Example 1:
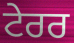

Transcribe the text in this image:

ਟੇਰਰ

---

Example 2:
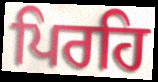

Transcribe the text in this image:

ਪਿਰਹਿ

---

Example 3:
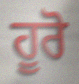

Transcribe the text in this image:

ਹੂਰੋ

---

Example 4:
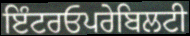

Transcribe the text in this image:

ਇੰਟਰਓਪਰੇਬਿਲਟੀ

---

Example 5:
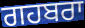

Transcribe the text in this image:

ਗਹਬਰਾ